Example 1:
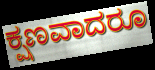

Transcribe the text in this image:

ಕ್ಷಣವಾದರೂ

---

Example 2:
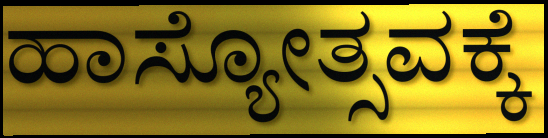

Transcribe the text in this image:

ಹಾಸ್ಯೋತ್ಸವಕ್ಕೆ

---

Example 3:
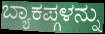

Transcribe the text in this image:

ಬ್ಯಾಕಪ್ಗಳನ್ನು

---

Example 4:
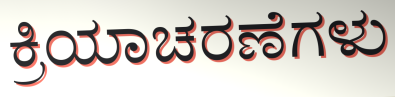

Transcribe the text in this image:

ಕ್ರಿಯಾಚರಣೆಗಳು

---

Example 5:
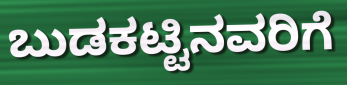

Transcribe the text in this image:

ಬುಡಕಟ್ಟಿನವರಿಗೆ